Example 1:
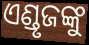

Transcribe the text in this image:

ଏଣ୍ଡୃଜଙ୍କୁ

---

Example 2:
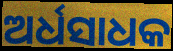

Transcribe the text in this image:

ଅର୍ଧସାଧକ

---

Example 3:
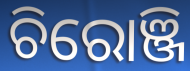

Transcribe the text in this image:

ଚିରୋଞ୍ଜି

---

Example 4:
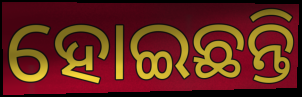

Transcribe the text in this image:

ହୋଇଛନ୍ତି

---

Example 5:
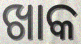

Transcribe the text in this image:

ଖାକ